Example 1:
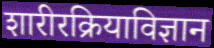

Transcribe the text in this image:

शारीरक्रियाविज्ञान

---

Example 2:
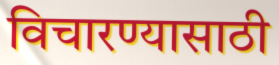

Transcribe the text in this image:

विचारण्यासाठी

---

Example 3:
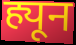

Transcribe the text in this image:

ह्यून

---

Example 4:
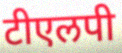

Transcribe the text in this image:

टीएलपी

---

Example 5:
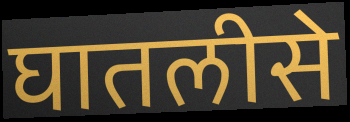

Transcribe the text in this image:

घातलीसे